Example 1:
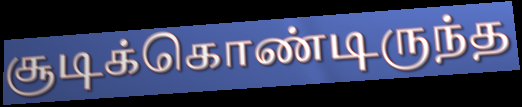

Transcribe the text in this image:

சூடிக்கொண்டிருந்த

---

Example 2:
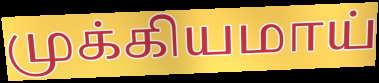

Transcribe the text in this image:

முக்கியமாய்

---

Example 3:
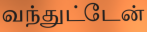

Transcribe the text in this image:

வந்துட்டேன்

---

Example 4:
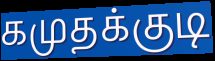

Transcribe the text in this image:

கமுதக்குடி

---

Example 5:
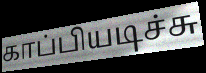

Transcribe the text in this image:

காப்பியடிச்சு